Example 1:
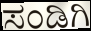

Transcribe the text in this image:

ಸಂಡಿಗಿ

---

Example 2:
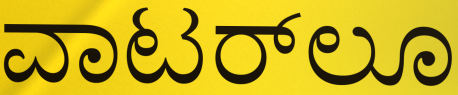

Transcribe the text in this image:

ವಾಟರ್‌ಲೂ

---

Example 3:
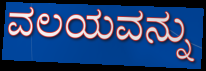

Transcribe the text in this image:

ವಲಯವನ್ನು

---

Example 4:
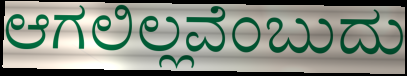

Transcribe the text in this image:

ಆಗಲಿಲ್ಲವೆಂಬುದು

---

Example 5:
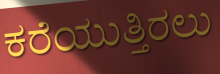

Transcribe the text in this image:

ಕರೆಯುತ್ತಿರಲು